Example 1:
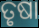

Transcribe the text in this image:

ତୃଷା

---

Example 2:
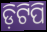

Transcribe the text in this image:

ଡ଼ିଟିପି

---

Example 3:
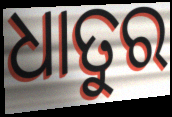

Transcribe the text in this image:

ଧାତୁର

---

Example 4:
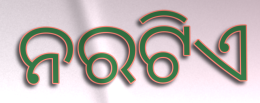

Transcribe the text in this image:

ନରଟିଏ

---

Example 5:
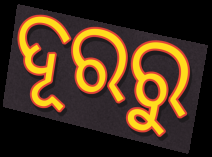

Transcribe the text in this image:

ଦୂରରୁ